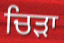
ਚਿੜਾ